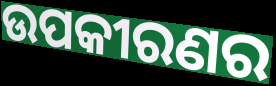
ଉପକୀରଣର